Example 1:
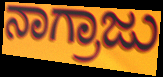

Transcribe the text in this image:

ನಾಗ್ರಾಜು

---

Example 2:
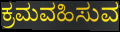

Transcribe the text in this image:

ಕ್ರಮವಹಿಸುವ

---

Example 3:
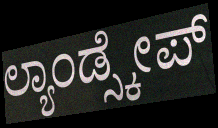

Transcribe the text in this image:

ಲ್ಯಾಂಡ್ಸ್ಕೇಪ್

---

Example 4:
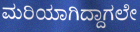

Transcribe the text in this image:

ಮರಿಯಾಗಿದ್ದಾಗಲೇ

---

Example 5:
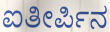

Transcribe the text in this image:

ಐತೀರ್ಪಿನ